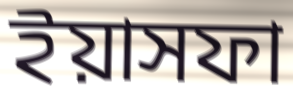
ইয়াসফা